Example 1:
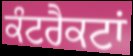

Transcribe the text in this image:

ਕੰਟਰੈਕਟਾਂ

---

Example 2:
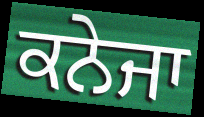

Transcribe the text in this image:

ਕਨੇਜਾ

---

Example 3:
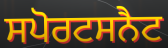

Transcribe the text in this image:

ਸਪੋਰਟਸਨੈਟ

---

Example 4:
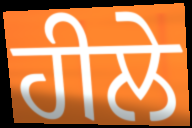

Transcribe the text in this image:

ਹੀਲੇ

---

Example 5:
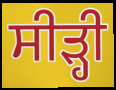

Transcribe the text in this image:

ਸੀੜ੍ਹੀ